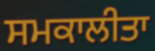
ਸਮਕਾਲੀਤਾ